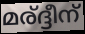
മര്ദ്ദീന്